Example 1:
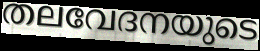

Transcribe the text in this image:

തലവേദനയുടെ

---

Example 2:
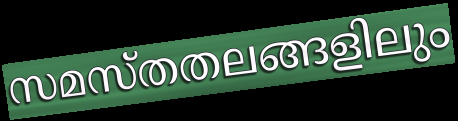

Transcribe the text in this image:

സമസ്തതലങ്ങളിലും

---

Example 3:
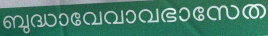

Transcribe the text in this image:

ബുദ്ധാവേവാവഭാസേത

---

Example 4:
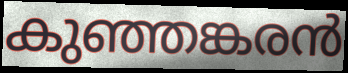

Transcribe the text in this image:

കുഞ്ഞങ്കരൻ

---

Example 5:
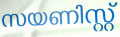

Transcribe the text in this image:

സയണിസ്റ്റ്